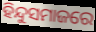
ହିନ୍ଦୁସମାଜରେ